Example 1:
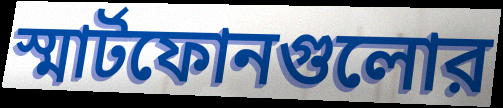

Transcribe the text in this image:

স্মার্টফোনগুলোর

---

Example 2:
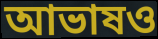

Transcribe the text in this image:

আভাষও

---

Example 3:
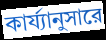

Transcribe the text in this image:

কার্য্যানুসারে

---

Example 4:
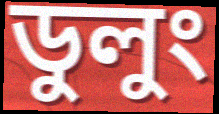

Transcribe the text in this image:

ডুলুং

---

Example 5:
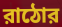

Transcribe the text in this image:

রাঠোর